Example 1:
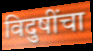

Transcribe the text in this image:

विदुषींचा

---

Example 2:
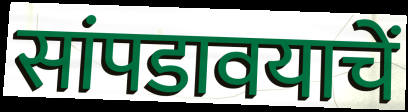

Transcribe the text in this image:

सांपडावयाचें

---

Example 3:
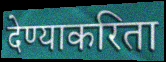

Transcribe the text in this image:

देण्याकरिता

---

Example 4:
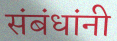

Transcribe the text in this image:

संबंधांनी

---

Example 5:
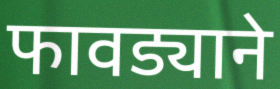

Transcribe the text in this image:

फावड्याने